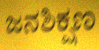
ಜನಶಿಕ್ಷಣ